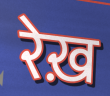
रेख़